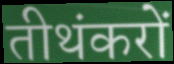
तीथंकरों